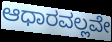
ಆಧಾರವಲ್ಲವೇ